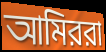
আমিররা